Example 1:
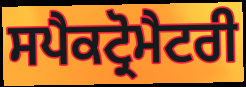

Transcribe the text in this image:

ਸਪੈਕਟ੍ਰੋਮੈਟਰੀ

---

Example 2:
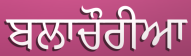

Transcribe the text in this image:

ਬਲਾਚੌਰੀਆ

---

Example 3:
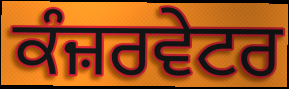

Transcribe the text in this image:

ਕੰਜ਼ਰਵੇਟਰ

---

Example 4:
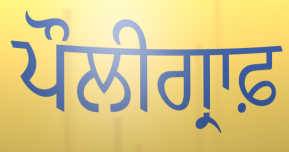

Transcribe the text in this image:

ਪੌਲੀਗ੍ਰਾਫ਼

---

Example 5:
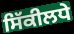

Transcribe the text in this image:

ਸਿੱਕੀਲਧੇ